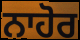
ਨਾਹੋਰ